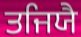
ਤਜਿਯੈ